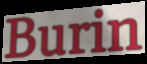
Burin